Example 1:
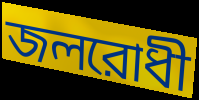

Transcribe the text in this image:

জলরোধী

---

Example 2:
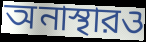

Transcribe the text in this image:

অনাস্থারও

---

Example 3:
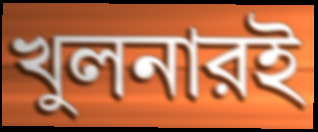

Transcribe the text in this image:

খুলনারই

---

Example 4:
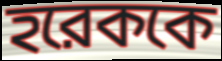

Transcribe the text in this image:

হরেককে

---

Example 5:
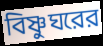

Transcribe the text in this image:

বিষ্ণুঘরের